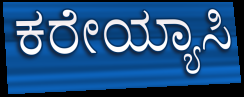
ಕರೇಯ್ಯಾಸಿ